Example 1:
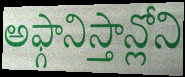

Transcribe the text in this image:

అఫ్గానిస్తాన్లోని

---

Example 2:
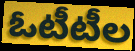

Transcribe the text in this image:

ఓటీటీల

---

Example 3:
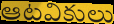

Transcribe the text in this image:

ఆటవికులు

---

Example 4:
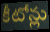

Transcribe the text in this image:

కీటోన్లు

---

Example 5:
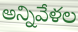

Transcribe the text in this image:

అన్నివేళల